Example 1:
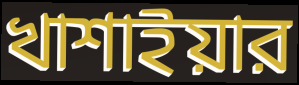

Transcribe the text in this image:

খাশাইয়ার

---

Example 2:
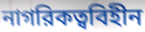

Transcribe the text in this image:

নাগরিকত্ববিহীন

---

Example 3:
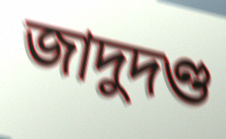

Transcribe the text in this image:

জাদুদণ্ড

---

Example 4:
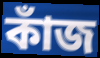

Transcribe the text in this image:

কাঁজ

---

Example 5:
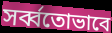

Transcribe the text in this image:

সর্ব্বতোভাবে